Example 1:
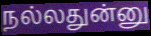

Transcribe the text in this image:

நல்லதுன்னு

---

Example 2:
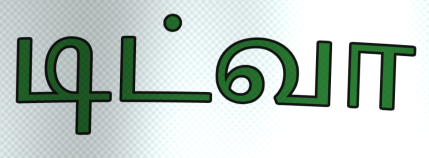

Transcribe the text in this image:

டிட்வா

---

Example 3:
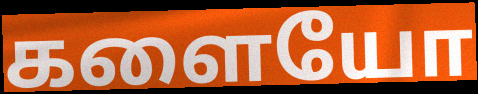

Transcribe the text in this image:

களையோ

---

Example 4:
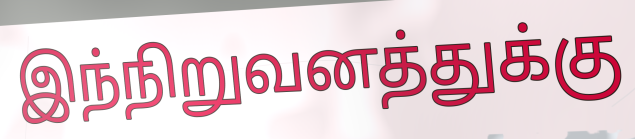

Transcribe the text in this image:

இந்நிறுவனத்துக்கு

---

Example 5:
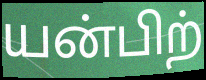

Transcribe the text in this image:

யன்பிற்